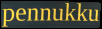
pennukku